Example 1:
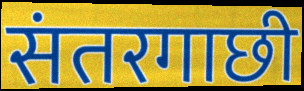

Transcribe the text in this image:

संतरगाछी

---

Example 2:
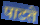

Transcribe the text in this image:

पाटते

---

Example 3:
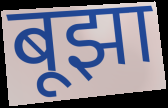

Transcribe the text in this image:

बूझा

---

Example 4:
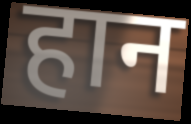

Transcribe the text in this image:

हान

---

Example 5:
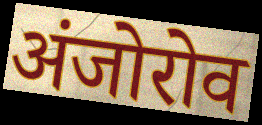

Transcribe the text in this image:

अंजोरोव